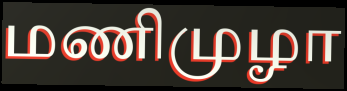
மணிமுழா